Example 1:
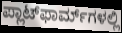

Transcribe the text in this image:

ಪ್ಲಾಟ್‌ಫಾರ್ಮ್‌ಗಳಲ್ಲಿ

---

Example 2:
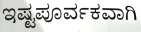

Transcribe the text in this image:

ಇಷ್ಟಪೂರ್ವಕವಾಗಿ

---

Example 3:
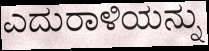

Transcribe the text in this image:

ಎದುರಾಳಿಯನ್ನು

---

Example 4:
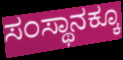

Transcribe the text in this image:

ಸಂಸ್ಥಾನಕ್ಕೂ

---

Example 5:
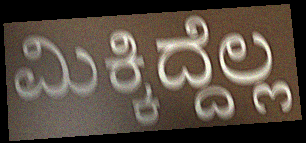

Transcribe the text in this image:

ಮಿಕ್ಕಿದ್ದೆಲ್ಲ